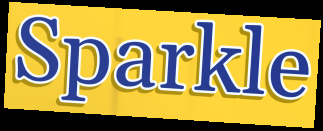
Sparkle